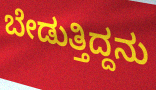
ಬೇಡುತ್ತಿದ್ದನು